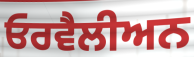
ਓਰਵੈਲੀਅਨ